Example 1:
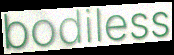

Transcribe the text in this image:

bodiless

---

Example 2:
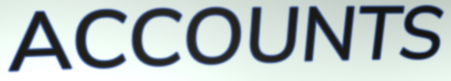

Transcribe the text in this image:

ACCOUNTS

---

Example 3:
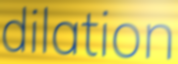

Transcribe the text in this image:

dilation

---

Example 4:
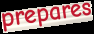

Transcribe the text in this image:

prepares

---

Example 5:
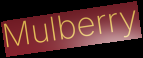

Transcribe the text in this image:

Mulberry